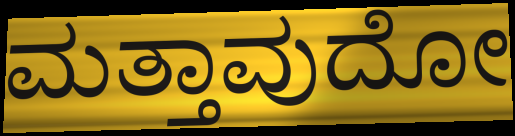
ಮತ್ತಾವುದೋ